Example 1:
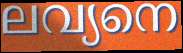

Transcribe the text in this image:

ലവ്യനെ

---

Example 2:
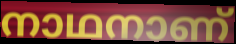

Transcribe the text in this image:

നാഥനാണ്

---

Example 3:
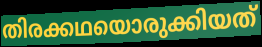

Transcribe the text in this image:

തിരക്കഥയൊരുക്കിയത്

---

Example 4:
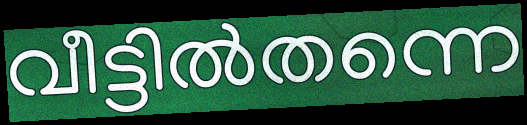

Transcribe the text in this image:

വീട്ടിൽതന്നെ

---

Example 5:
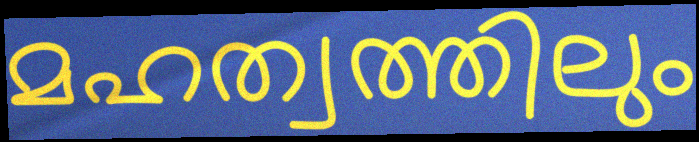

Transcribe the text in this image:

മഹത്വത്തിലും